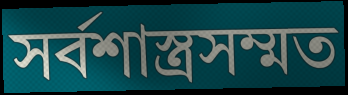
সর্বশাস্ত্রসম্মত